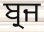
ਬ੍ਰਜ